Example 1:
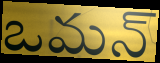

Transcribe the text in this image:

ఒమన్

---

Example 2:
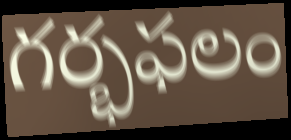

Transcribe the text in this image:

గర్భఫలం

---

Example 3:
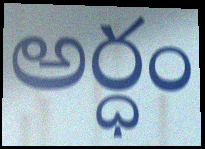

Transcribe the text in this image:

అర్ధం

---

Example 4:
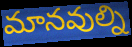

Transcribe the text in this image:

మానవుల్ని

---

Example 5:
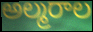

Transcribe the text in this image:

అల్మరాల